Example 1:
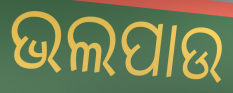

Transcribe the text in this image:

ଭଲପାଉ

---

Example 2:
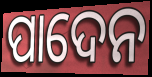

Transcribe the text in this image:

ପାଦେନ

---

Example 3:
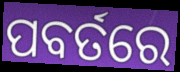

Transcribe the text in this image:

ପବର୍ତରେ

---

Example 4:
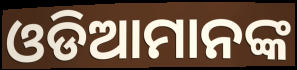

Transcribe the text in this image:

ଓଡିଆମାନଙ୍କ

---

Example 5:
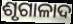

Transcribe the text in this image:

ଶୃଗାଳାଦ